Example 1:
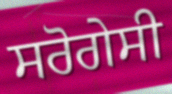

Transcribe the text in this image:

ਸਰੋਗੇਸੀ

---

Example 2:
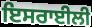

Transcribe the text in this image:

ਇਸਰਾਈਲੀ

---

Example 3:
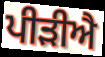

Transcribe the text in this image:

ਪੀੜੀਐ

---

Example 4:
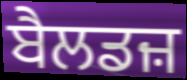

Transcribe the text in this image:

ਬੈਲਡਜ਼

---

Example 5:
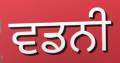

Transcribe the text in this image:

ਵਡਨੀ